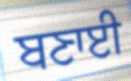
ਬਣਾਈ